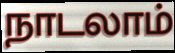
நாடலாம்